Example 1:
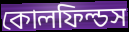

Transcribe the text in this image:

কোলফিল্ডস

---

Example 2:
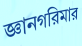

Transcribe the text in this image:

জ্ঞানগরিমার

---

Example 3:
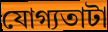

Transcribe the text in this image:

যোগ্যতাটা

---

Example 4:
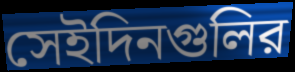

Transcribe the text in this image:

সেইদিনগুলির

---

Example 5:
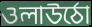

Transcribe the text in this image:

ওলাউঠো